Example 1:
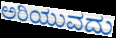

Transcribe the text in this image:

ಅರಿಯುವದು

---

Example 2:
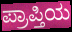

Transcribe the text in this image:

ಪ್ರಾಪ್ತಿಯ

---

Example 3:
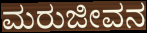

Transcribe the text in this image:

ಮರುಜೀವನ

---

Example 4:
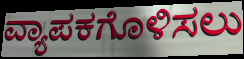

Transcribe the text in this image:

ವ್ಯಾಪಕಗೊಳಿಸಲು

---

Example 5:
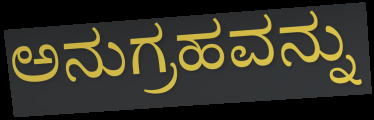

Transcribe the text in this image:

ಅನುಗ್ರಹವನ್ನು